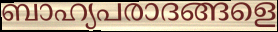
ബാഹ്യപരാദങ്ങളെ